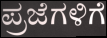
ಪ್ರಜೆಗಳಿಗೆ